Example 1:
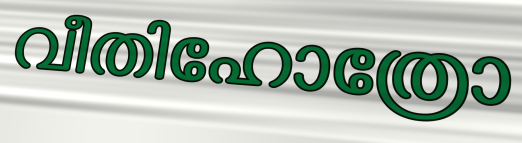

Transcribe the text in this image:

വീതിഹോത്രോ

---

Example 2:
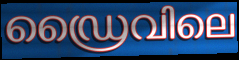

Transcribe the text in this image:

ഡ്രൈവിലെ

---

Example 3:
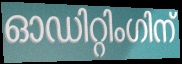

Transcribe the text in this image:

ഓഡിറ്റിംഗിന്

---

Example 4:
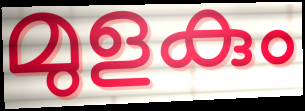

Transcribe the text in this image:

മുളകും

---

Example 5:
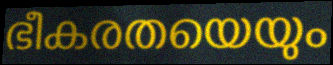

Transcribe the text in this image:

ഭീകരതയെയും